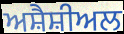
ਅਸ਼ੈਸ਼ੀਅਲ